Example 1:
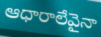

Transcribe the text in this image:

ఆధారాలేవైనా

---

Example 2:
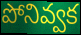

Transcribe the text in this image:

పోనివ్వక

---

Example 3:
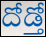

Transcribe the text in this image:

దోడ్తో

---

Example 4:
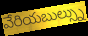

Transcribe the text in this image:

వేరియబుల్స్ను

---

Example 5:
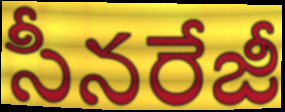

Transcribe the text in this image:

సీనరేజీ